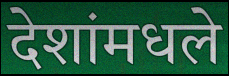
देशांमधले